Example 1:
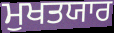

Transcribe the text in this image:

ਮੁਖਤਯਾਰ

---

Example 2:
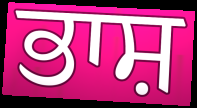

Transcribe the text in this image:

ਭਾਸ਼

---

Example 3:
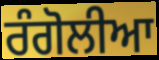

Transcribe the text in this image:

ਰੰਗੋਲੀਆ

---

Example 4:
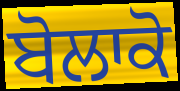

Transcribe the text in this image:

ਬੋਲਾਕੋ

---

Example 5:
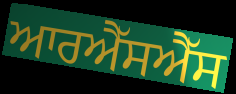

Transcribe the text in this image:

ਆਰਐੱਸਐੱਸ